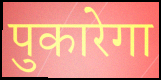
पुकारेगा